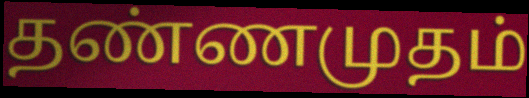
தண்ணமுதம்